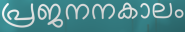
പ്രജനനകാലം